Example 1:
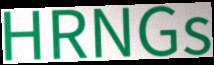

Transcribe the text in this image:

HRNGs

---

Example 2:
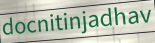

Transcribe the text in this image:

docnitinjadhav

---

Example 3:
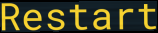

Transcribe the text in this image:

Restart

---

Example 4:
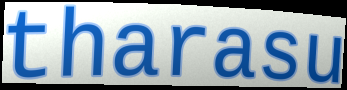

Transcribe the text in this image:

tharasu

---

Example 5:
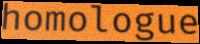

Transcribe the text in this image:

homologue